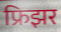
फ्रिझर